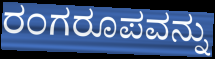
ರಂಗರೂಪವನ್ನು